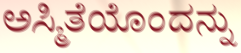
ಅಸ್ಮಿತೆಯೊಂದನ್ನು